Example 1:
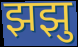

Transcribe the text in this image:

झझु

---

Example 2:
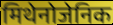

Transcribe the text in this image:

मिथेनोजेनिक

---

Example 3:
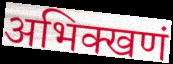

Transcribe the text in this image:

अभिक्खणं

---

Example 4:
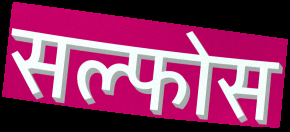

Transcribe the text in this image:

सल्फोस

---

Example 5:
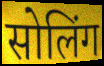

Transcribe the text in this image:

सोलिंग